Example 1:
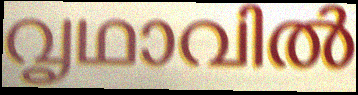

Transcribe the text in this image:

വൃഥാവിൽ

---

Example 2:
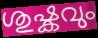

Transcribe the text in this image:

ശുഷ്കവും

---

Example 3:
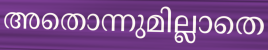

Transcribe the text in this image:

അതൊന്നുമില്ലാതെ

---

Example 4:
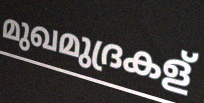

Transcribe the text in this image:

മുഖമുദ്രകള്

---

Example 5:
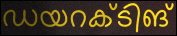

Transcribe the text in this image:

ഡയറക്ടിങ്